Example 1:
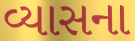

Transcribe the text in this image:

વ્યાસના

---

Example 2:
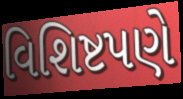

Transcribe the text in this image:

વિશિષ્ટપણે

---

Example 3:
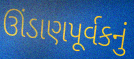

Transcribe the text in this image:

ઊંડાણપૂર્વકનું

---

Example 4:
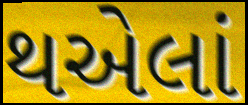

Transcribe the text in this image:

થએલાં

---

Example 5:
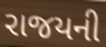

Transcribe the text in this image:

રાજયની